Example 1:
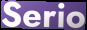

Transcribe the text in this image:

Serio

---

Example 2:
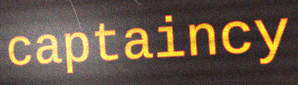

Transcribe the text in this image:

captaincy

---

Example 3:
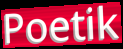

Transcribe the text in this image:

Poetik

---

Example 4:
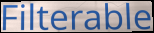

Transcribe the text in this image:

Filterable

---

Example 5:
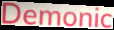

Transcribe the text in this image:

Demonic